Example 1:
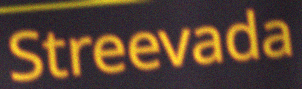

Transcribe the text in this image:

Streevada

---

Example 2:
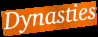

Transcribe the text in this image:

Dynasties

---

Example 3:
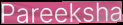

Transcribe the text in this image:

Pareeksha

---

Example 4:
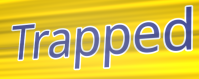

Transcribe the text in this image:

Trapped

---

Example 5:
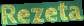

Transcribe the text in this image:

Rezeta